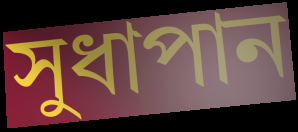
সুধাপান